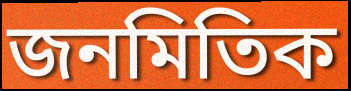
জনমিতিক